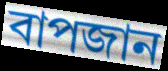
বাপজান